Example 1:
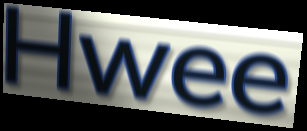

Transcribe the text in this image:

Hwee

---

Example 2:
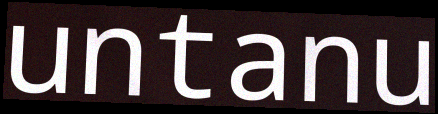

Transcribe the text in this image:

untanu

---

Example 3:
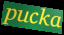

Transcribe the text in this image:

pucka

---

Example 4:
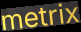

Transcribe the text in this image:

metrix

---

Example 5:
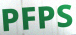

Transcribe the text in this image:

PFPS